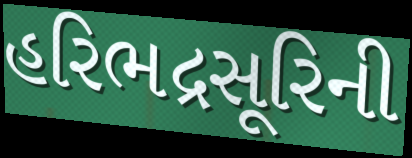
હરિભદ્રસૂરિની